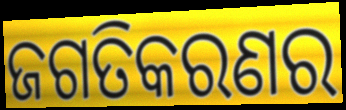
ଜଗତିକରଣର